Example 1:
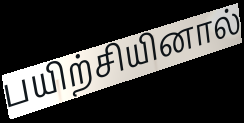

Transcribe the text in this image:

பயிற்சியினால்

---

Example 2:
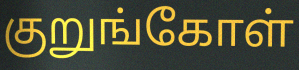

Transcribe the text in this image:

குறுங்கோள்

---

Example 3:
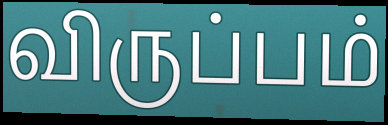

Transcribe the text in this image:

விருப்பம்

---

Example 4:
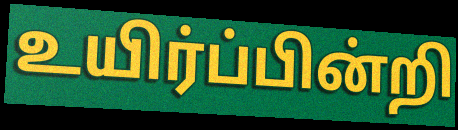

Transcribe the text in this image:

உயிர்ப்பின்றி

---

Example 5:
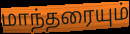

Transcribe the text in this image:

மாந்தரையும்